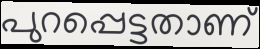
പുറപ്പെട്ടതാണ്